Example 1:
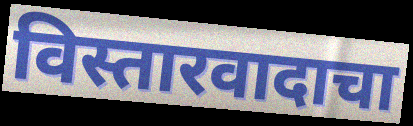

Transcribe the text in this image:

विस्तारवादाचा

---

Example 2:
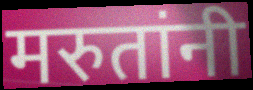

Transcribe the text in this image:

मरुतांनी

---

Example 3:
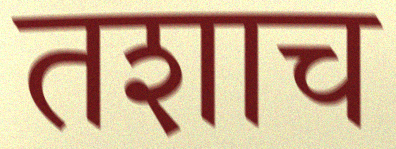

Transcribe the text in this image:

तशाच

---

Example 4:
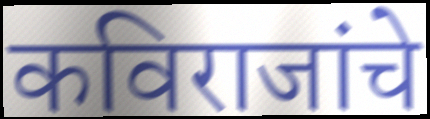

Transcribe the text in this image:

कविराजांचे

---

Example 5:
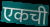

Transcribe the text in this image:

एकची